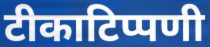
टीकाटिप्पणी